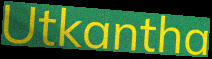
Utkantha